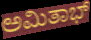
ಅಮಿತಾಭ್